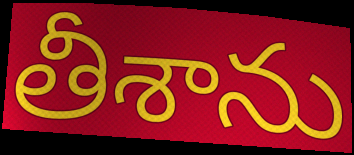
తీశాను